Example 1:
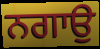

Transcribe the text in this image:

ਨਗਾਉ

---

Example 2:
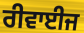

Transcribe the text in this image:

ਰੀਵਾਈਜ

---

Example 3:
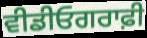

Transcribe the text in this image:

ਵੀਡੀਓਗਰਾਫ਼ੀ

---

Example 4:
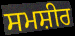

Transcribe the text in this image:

ਸਮਸ਼ੀਰ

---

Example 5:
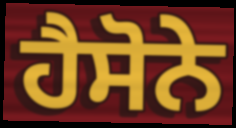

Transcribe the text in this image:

ਹੈਸੋਨੇ